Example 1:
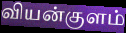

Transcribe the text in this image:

வியன்குளம்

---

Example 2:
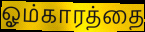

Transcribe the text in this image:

ஓம்காரத்தை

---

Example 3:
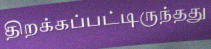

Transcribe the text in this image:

திறக்கப்பட்டிருந்தது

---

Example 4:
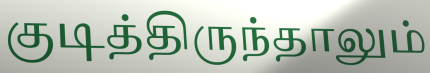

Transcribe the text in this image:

குடித்திருந்தாலும்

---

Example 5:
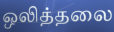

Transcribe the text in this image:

ஒலித்தலை